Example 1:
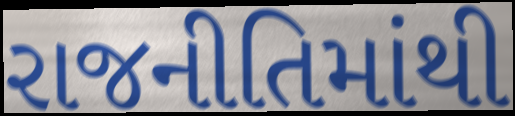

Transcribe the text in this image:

રાજનીતિમાંથી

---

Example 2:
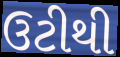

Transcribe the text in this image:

ઉટીથી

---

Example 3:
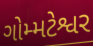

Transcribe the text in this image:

ગોમ્મટેશ્વર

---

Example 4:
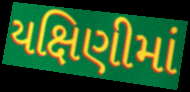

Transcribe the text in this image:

યક્ષિણીમાં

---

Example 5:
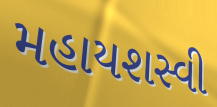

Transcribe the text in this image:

મહાયશસ્વી